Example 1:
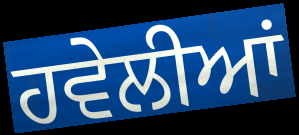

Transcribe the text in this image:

ਹਵੇਲੀਆਂ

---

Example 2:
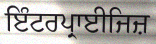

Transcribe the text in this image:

ਇੰਟਰਪ੍ਰਾਈਜਿਜ਼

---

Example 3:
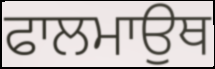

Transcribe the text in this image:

ਫਾਲਮਾਉਥ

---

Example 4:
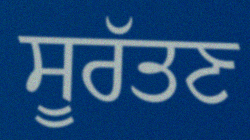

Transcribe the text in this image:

ਸੂਰੱਤਣ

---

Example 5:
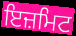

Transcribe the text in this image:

ਇਜ਼ਮਿਟ